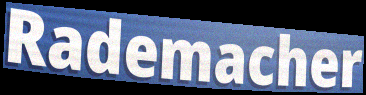
Rademacher